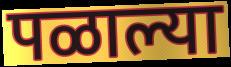
पळाल्या